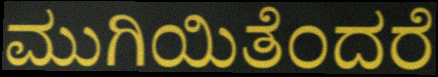
ಮುಗಿಯಿತೆಂದರೆ